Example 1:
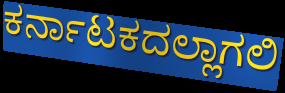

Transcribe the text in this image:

ಕರ್ನಾಟಕದಲ್ಲಾಗಲಿ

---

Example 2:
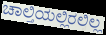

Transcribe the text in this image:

ಚಾಲ್ತಿಯಲ್ಲಿರಲಿಲ್ಲ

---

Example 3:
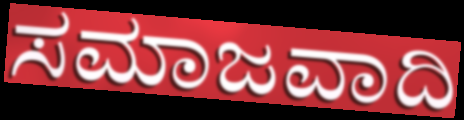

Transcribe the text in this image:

ಸಮಾಜವಾದಿ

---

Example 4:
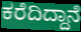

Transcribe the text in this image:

ಕರೆದಿದ್ದಾನೆ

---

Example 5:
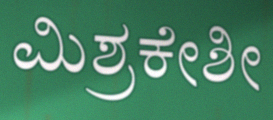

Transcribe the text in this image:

ಮಿಶ್ರಕೇಶೀ